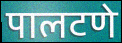
पालटणे